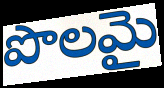
పొలమై